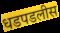
धडपडलीस